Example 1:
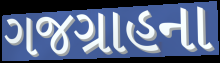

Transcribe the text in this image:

ગજગ્રાહના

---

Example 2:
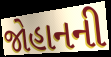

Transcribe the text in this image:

જોહાનની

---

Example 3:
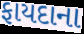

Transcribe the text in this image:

ફાયદાના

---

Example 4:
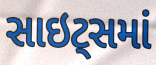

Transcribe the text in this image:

સાઇટ્સમાં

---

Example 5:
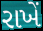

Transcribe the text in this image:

રાખેં